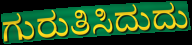
ಗುರುತಿಸಿದುದು